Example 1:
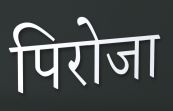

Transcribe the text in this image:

पिरोजा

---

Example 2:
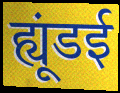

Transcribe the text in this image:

ह्यूंडई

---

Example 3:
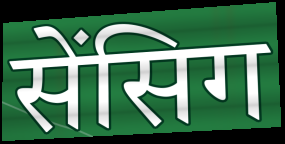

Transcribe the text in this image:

सेंसिग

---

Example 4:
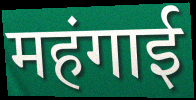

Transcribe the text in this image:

महंगाई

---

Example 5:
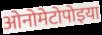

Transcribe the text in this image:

ओनोमेटोपोइया